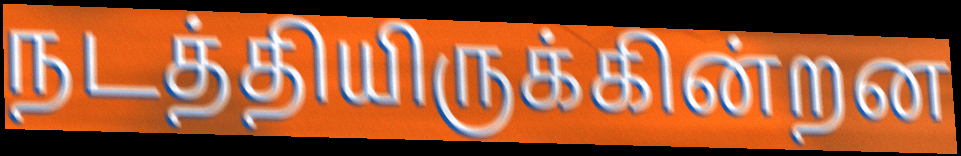
நடத்தியிருக்கின்றன